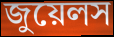
জুয়েলস